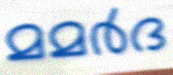
മമർദ